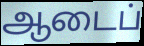
ஆடைப்